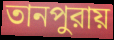
তানপুরায়